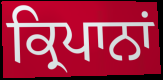
ਕ੍ਰਿਪਾਨਾਂ